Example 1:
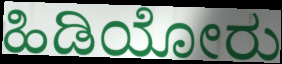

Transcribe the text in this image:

ಹಿಡಿಯೋರು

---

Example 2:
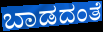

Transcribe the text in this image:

ಬಾಡದಂತೆ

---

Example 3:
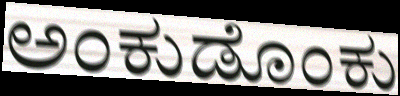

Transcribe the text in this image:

ಅಂಕುಡೊಂಕು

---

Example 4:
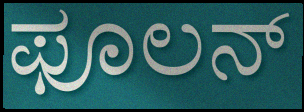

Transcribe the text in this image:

ಫೂಲನ್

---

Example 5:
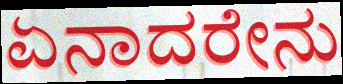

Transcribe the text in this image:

ಏನಾದರೇನು